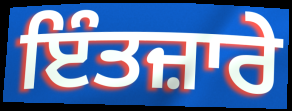
ਇੰਤਜ਼ਾਰੇ